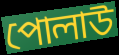
পোলাউ